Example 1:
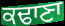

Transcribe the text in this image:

ਕਢਾਣਾ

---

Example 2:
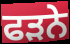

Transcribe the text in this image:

ਫੜਨੇ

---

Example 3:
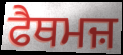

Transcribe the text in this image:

ਫੈਥਮਜ਼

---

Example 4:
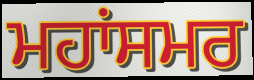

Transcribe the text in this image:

ਮਹਾਂਸਮਰ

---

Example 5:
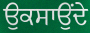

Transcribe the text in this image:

ਉਕਸਾਉਂਦੇ